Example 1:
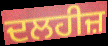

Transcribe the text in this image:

ਦਲਹੀਜ਼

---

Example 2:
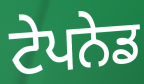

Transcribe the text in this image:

ਟੇਪਨੇਡ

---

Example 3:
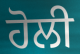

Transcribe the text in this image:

ਹੋਲੀ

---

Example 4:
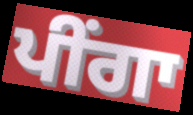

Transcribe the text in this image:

ਪੀਂਗਾ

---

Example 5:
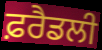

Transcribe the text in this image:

ਫ਼ਰੈਡਲੀ